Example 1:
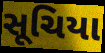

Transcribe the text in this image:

સૂચિયા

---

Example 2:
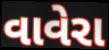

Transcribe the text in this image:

વાવેરા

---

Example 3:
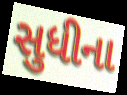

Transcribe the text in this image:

સુધીના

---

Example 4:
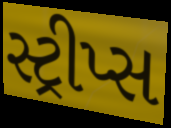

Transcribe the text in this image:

સ્ટ્રીપ્સ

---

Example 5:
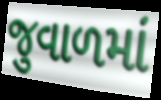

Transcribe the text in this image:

જુવાળમાં